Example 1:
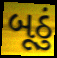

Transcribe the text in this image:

બૂઠું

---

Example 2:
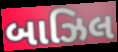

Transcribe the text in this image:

બાઝિલ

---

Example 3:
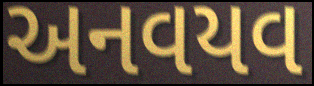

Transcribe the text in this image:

અનવયવ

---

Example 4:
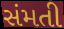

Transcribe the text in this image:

સંમતી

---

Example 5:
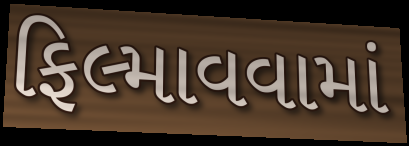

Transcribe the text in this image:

ફિલ્માવવામાં